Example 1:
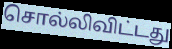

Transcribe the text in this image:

சொல்லிவிட்டது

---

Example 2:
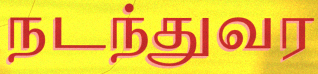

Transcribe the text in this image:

நடந்துவர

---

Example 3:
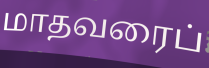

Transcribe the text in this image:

மாதவரைப்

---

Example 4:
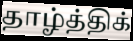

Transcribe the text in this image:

தாழ்த்திக்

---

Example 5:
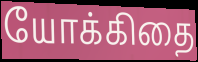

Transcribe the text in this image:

யோக்கிதை